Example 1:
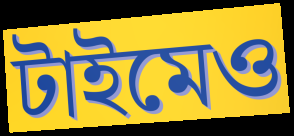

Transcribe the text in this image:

টাইমেও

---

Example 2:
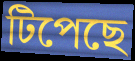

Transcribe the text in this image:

টিপেছে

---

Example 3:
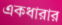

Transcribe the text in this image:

একধারার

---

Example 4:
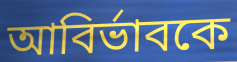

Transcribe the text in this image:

আবির্ভাবকে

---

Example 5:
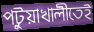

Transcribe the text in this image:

পটুয়াখালীতেই